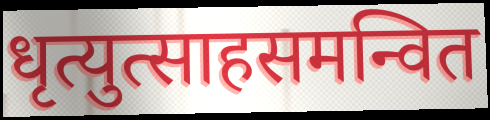
धृत्युत्साहसमन्वित